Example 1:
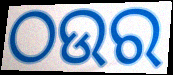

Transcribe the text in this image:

ଠଉର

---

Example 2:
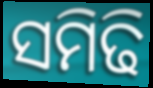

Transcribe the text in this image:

ସମିଢି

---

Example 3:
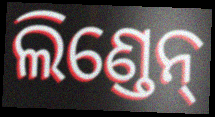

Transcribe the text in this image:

ଲିଣ୍ଡେନ୍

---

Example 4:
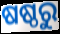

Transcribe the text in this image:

ଷଷ୍ଠରୁ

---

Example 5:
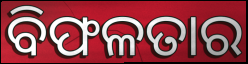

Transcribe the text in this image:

ବିଫଳତାର